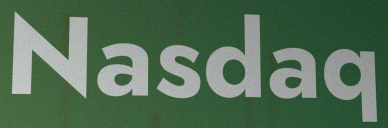
Nasdaq